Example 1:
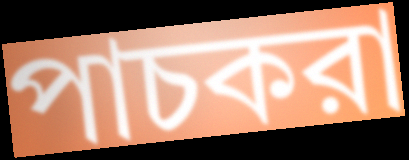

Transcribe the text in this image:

পাচকরা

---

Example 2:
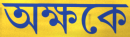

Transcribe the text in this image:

অক্ষকে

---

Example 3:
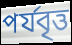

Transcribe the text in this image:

পর্যবৃত্ত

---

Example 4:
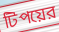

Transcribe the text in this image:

টিপয়ের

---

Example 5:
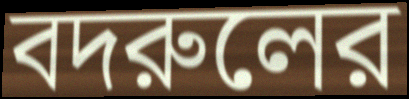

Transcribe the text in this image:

বদরুলের